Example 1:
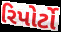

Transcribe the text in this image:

રિપોર્ટો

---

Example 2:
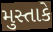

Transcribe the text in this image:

મુસ્તાકે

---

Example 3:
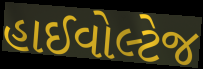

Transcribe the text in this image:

હાઈવોલ્ટેજ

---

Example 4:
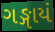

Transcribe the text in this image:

ગઙ્ગાયં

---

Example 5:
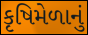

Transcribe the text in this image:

કૃષિમેળાનું